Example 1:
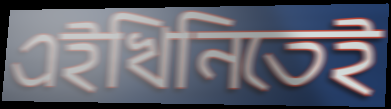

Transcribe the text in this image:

এইখিনিতেই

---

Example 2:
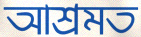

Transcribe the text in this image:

আশ্ৰমত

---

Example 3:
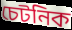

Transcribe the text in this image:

চেটনিক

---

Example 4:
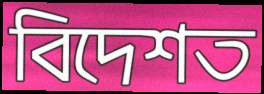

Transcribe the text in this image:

বিদেশত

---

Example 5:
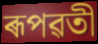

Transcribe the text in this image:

ৰূপৱতী